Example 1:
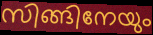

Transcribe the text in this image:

സിങ്ങിനേയും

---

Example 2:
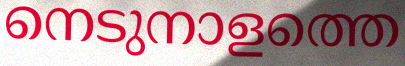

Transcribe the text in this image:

നെടുനാളത്തെ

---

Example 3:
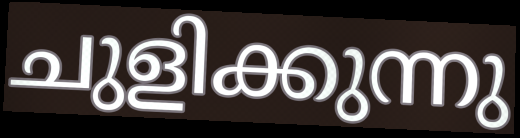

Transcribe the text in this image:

ചുളിക്കുന്നു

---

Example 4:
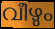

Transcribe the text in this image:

വീഴും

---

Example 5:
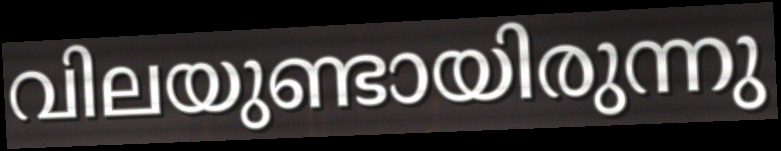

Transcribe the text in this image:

വിലയുണ്ടായിരുന്നു